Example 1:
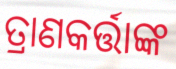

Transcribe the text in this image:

ତ୍ରାଣକର୍ତ୍ତାଙ୍କ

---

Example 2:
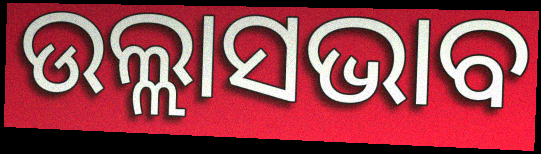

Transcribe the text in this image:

ଉଲ୍ଲାସଭାବ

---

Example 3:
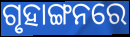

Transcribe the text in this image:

ଗୃହାଙ୍ଗନରେ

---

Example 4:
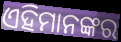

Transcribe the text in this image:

ଏହିମାନଙ୍କର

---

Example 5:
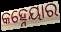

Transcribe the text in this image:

କହ୍ନେୟାର